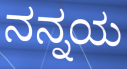
ನನ್ನಯ